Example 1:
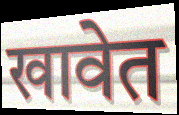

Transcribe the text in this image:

खावेत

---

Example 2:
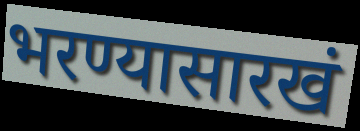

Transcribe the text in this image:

भरण्यासारखं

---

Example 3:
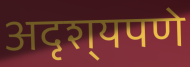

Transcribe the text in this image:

अदृश्यपणे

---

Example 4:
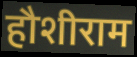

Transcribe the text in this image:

हौशीराम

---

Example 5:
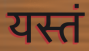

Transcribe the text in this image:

यस्तं